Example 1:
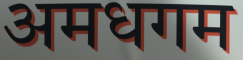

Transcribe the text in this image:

अमधगम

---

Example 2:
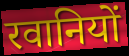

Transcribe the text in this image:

रवानियों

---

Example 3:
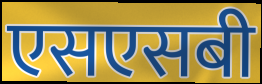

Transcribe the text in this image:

एसएसबी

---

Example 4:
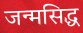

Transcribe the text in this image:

जन्मसिद्ध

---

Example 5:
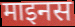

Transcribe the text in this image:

माइनस